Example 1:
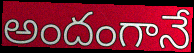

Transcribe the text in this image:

అందంగానే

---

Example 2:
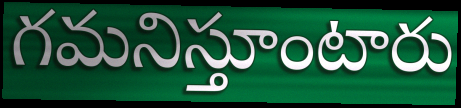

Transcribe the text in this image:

గమనిస్తూంటారు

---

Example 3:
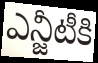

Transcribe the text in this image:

ఎన్జీటీకి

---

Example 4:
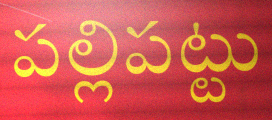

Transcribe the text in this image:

పల్లిపట్టు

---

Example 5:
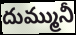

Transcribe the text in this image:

దుమ్మునీ